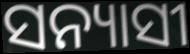
ସନ୍ୟାସୀ